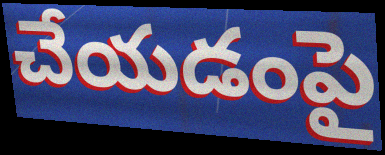
చేయడంపై